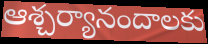
ఆశ్చర్యానందాలకు